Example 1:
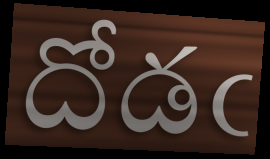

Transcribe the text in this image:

దోడఁ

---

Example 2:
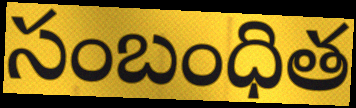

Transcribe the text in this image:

సంబంధిత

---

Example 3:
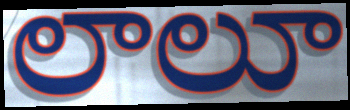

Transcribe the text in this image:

లాలూ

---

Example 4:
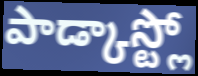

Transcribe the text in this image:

పాడ్కాస్ట్లో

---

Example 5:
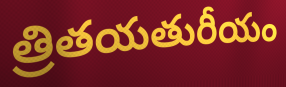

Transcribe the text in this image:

త్రితయతురీయం